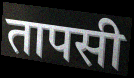
तापसी